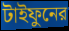
টাইফুনের